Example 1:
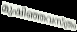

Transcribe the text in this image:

മുഷിഞ്ഞവസ്ത്രം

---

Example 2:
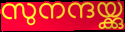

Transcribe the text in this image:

സുനന്ദയ്ക്കു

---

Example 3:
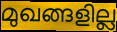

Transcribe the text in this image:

മുഖങ്ങളില്ല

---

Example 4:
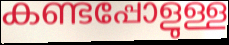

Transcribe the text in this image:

കണ്ടപ്പോളുള്ള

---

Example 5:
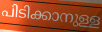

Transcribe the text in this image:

പിടിക്കാനുള്ള